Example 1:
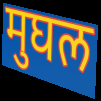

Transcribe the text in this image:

मुघल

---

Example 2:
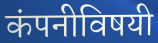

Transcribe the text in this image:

कंपनीविषयी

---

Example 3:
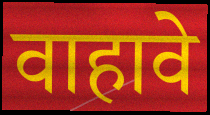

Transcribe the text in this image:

वाहावे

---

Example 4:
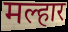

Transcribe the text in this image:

मल्हार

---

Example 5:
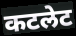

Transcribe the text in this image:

कटलेट